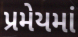
પ્રમેયમાં